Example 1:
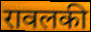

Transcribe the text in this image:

रावलकी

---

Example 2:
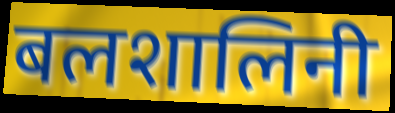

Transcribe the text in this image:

बलशालिनी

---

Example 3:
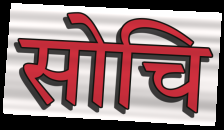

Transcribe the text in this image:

सोचि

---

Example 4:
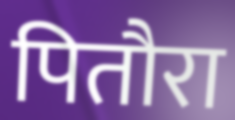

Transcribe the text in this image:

पितौरा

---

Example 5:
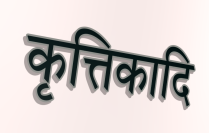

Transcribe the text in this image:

कृत्तिकादि